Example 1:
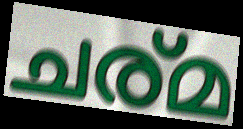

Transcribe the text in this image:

ചര്മ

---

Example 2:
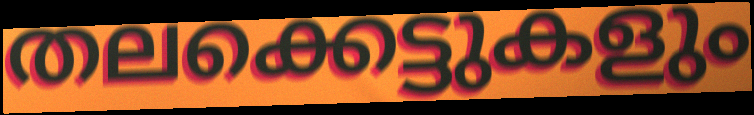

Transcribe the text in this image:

തലക്കെട്ടുകളും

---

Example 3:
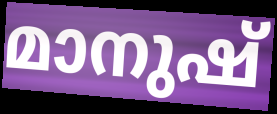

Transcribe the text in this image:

മാനുഷ്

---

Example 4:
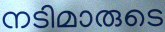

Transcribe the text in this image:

നടിമാരുടെ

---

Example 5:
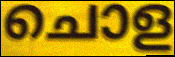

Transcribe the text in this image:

ചൊള